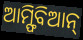
ଆମ୍ଫିବିଆନ୍